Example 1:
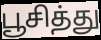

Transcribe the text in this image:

பூசித்து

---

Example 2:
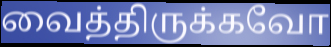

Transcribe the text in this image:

வைத்திருக்கவோ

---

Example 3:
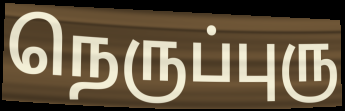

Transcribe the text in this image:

நெருப்புரு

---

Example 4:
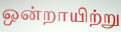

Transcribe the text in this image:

ஒன்றாயிற்று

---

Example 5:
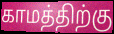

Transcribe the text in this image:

காமத்திற்கு